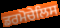
ਡਰਮੋਚੇਲਿਸ